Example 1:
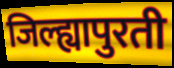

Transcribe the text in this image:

जिल्ह्यापुरती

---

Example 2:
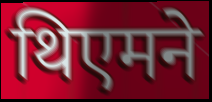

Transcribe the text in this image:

थिएमने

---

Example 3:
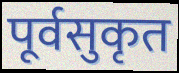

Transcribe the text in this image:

पूर्वसुकृत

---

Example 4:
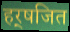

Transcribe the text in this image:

हर्षजित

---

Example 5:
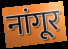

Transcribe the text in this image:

नांगूर